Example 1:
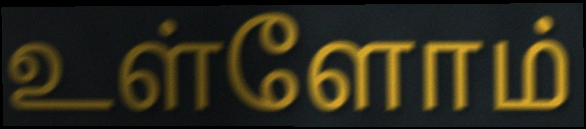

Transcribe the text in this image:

உள்ளோம்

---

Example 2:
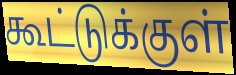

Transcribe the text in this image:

கூட்டுக்குள்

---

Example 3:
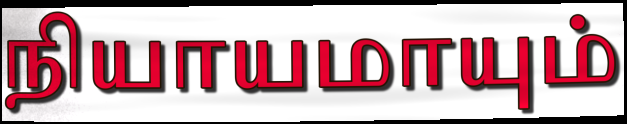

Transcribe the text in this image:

நியாயமாயும்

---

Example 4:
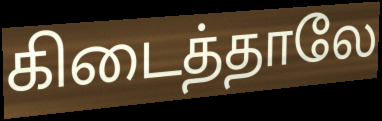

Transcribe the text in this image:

கிடைத்தாலே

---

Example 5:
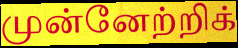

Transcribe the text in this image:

முன்னேற்றிக்